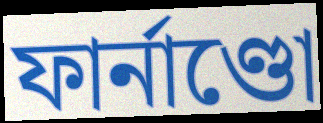
ফাৰ্নাণ্ডো